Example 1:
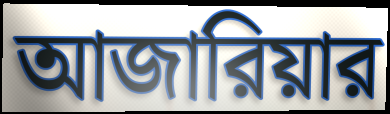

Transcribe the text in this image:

আজারিয়ার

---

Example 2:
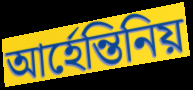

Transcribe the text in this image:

আর্হেন্তিনিয়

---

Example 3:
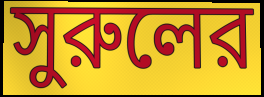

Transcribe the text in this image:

সুরুলের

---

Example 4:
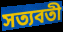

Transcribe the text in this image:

সত্যবতী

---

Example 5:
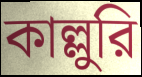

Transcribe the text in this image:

কাল্লুরি